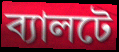
ব্যালটে